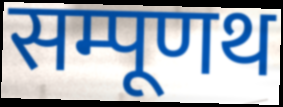
सम्पूणथ